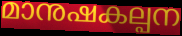
മാനുഷകല്പന